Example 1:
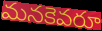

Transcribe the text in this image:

మనకెవరూ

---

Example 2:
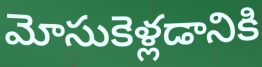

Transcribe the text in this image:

మోసుకెళ్లడానికి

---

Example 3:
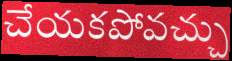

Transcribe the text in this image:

చేయకపోవచ్చు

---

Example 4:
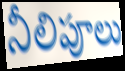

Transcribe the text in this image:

నీలిపూలు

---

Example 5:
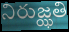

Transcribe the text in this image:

నిరుజ్ఝతి